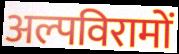
अल्पविरामों